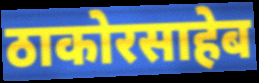
ठाकोरसाहेब